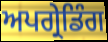
ਅਪਗ੍ਰੇਡਿੰਗ